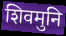
शिवमुनि